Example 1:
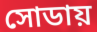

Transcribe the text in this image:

সোডায়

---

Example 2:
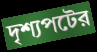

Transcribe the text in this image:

দৃশ্যপটের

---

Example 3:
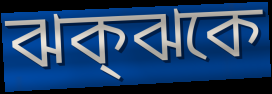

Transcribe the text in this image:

ঝক্‌ঝকে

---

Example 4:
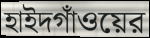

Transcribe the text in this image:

হাইদগাঁওয়ের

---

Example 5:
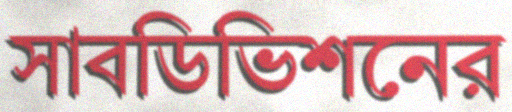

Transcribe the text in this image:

সাবডিভিশনের